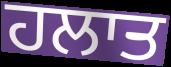
ਹਲਾਤ